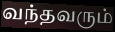
வந்தவரும்